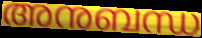
അനുബന്ധ